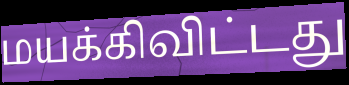
மயக்கிவிட்டது